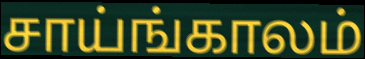
சாய்ங்காலம்